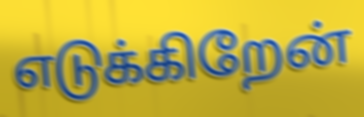
எடுக்கிறேன்